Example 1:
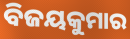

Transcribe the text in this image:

ବିଜୟକୁମାର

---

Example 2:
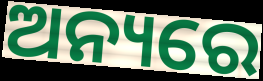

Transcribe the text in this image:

ଅନ୍ୟରେ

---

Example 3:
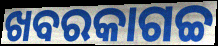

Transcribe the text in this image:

ଖବରକାଗଚ୍ଚ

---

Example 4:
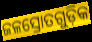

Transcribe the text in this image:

ଜଳସ୍ରୋତଗୁଡ଼ିକ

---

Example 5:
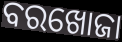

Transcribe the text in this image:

ବରଖୋଜା